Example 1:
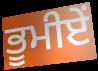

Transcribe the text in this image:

ਭੂਮੀਏਂ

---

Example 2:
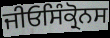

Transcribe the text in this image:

ਜੀਓਸਿੰਕ੍ਰੋਨਸ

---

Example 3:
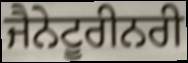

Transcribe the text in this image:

ਜੈਨੇਟੂਰੀਨਰੀ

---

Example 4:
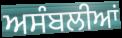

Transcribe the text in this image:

ਅਸੰਬਲੀਆਂ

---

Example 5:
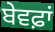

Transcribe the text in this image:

ਬੇਵਫ਼ਾਂ